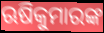
ଋଷିକୁମାରଙ୍କ